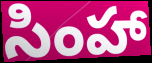
సింహా